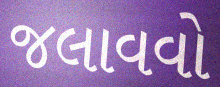
જલાવવો